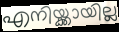
എനിയ്ക്കായില്ല